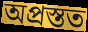
অপ্রস্তত